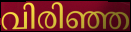
വിരിഞ്ഞ